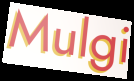
Mulgi